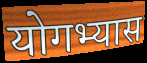
योगभ्यास